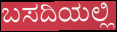
ಬಸದಿಯಲ್ಲಿ